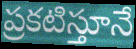
ప్రకటిస్తూనే